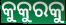
କୁକୁରକୁ